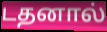
டதனால்